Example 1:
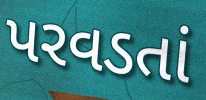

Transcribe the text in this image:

પરવડતાં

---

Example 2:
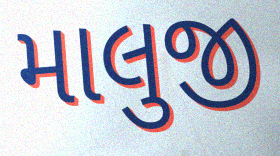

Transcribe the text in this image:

માલુજી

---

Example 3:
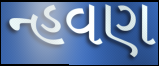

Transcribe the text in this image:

ન્હવણ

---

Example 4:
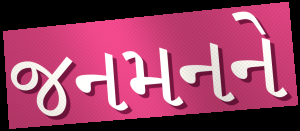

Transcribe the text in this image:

જનમનને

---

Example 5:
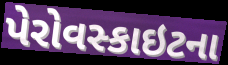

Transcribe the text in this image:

પેરોવસ્કાઇટના